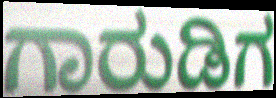
ಗಾರುಡಿಗ